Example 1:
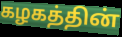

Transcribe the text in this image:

கழகத்தின்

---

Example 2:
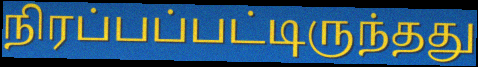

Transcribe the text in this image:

நிரப்பப்பட்டிருந்தது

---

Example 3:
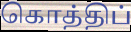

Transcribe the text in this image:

கொத்திப்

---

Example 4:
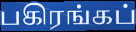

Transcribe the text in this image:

பகிரங்கப்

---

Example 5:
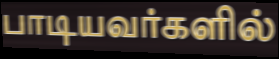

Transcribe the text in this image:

பாடியவர்களில்